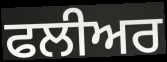
ਫਲੀਅਰ